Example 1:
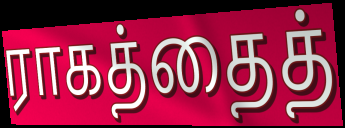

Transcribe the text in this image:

ராகத்தைத்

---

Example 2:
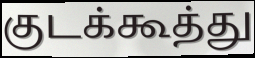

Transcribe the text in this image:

குடக்கூத்து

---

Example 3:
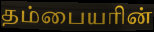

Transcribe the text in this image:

தம்பையரின்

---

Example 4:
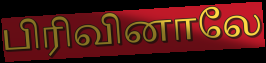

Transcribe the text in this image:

பிரிவினாலே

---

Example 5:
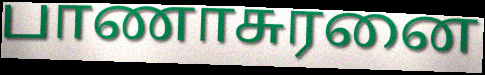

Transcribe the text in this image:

பாணாசுரனை